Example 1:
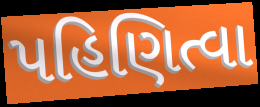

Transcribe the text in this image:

પહિણિત્વા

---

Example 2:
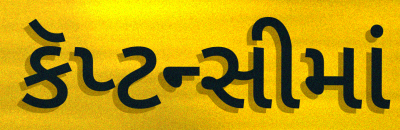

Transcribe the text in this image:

કૅપ્ટન્સીમાં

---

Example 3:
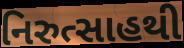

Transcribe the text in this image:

નિરુત્સાહથી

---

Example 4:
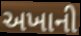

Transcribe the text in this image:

અખાની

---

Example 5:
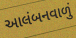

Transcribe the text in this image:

આલંબનવાળું